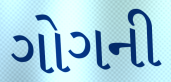
ગોગની